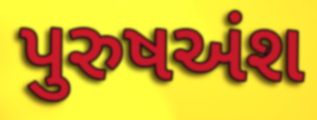
પુરુષઅંશ